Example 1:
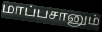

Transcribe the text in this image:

மாப்பசானும்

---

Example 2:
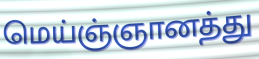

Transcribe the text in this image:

மெய்ஞ்ஞானத்து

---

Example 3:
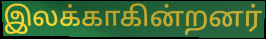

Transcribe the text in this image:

இலக்காகின்றனர்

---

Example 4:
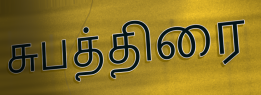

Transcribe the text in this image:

சுபத்திரை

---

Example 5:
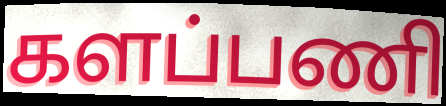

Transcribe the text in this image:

களப்பணி